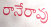
రానేరావు